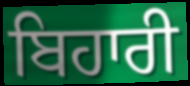
ਬਿਹਾਰੀ